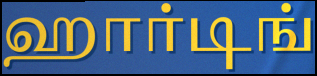
ஹார்டிங்